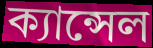
ক্যান্সেল